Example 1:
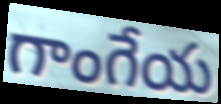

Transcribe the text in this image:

గాంగేయ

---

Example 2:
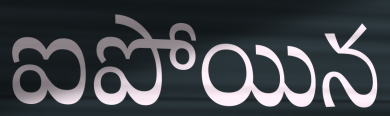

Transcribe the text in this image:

ఐపోయిన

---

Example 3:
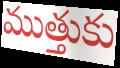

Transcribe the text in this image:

ముత్తుకు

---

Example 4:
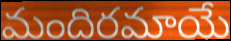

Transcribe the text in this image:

మందిరమాయే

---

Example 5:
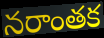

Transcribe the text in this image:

నరాంతక